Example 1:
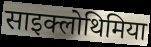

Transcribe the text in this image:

साइक्लोथिमिया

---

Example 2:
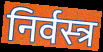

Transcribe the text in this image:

निर्वस्त्र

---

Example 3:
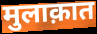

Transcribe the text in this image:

मुलाक़ात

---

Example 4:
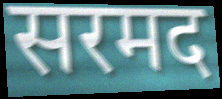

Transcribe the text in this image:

सरमद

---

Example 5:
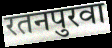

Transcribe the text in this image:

रतनपुरवा